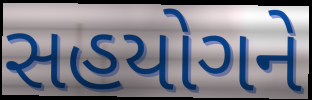
સહયોગને